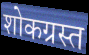
शोकग्रस्त